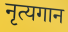
नृत्यगान